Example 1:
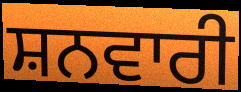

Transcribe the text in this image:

ਸ਼ਨਵਾਰੀ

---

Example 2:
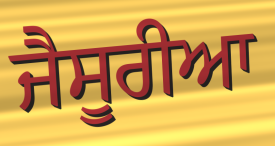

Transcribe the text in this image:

ਜੈਸੂਰੀਆ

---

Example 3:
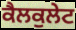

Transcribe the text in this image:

ਕੈਲਕੁਲੇਟ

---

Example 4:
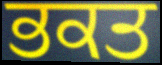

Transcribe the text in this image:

ਭਕਤ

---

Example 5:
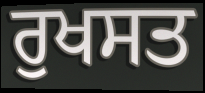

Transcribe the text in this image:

ਰੁਖਸਤ